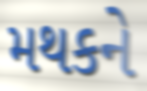
મથકને